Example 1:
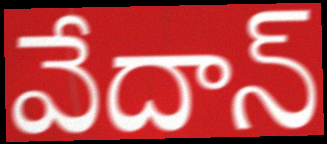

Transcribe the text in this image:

వేదాన్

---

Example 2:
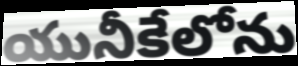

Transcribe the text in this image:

యునీకేలోను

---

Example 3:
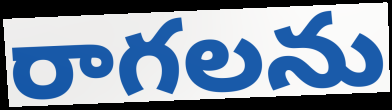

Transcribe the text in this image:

రాగలను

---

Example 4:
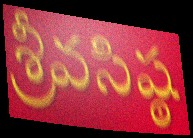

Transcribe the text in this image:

శ్రీవసిష్ఠ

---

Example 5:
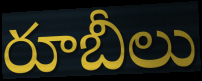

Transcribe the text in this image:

రూబీలు